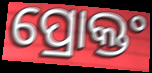
ପ୍ରୋକ୍ତଂ